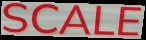
SCALE